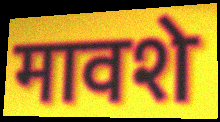
मावशे